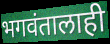
भगवंतालाही